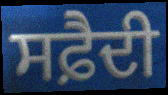
ਸਫ਼ੈਦੀ